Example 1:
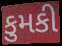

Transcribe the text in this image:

કુમકી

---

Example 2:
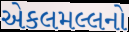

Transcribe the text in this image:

એકલમલ્લનો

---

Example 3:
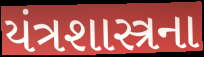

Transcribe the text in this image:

યંત્રશાસ્ત્રના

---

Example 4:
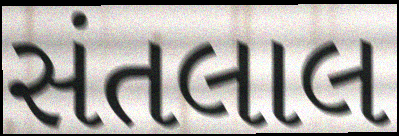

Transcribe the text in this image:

સંતલાલ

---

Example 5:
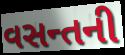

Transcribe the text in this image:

વસન્તની